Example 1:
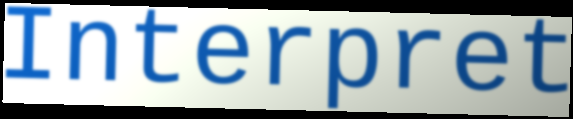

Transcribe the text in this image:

Interpret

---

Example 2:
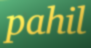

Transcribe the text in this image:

pahil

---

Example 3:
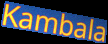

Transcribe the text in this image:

Kambala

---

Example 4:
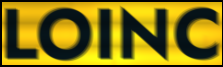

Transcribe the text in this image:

LOINC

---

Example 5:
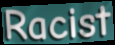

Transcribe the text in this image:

Racist